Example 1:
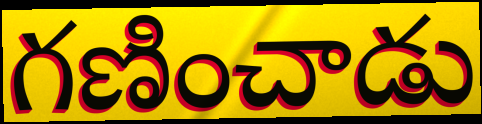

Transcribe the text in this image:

గణించాడు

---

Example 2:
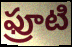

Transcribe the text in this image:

ఫ్రూటి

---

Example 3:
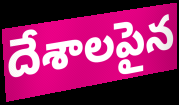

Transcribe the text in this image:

దేశాలపైన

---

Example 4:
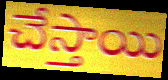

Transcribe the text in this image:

చేస్తాయి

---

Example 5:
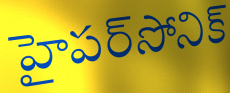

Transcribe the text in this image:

హైపర్‌సోనిక్